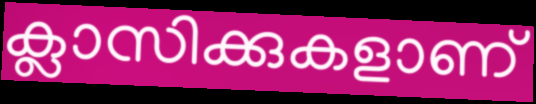
ക്ലാസിക്കുകളാണ്